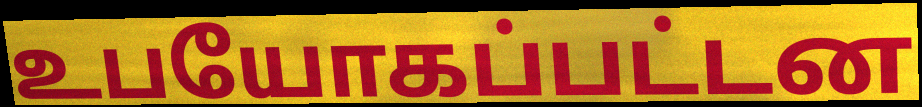
உபயோகப்பட்டன